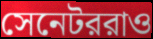
সেনেটররাও